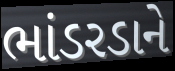
ભાંડરડાને